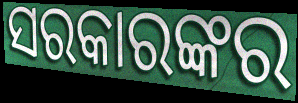
ସରକାରଙ୍କର